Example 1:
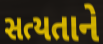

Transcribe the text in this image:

સત્યતાને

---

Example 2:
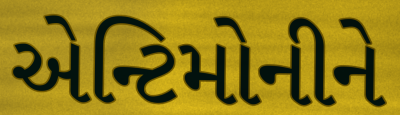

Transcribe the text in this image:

એન્ટિમોનીને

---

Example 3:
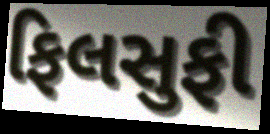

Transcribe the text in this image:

ફિલસુફી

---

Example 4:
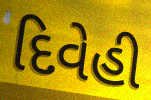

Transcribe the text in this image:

દિવેહી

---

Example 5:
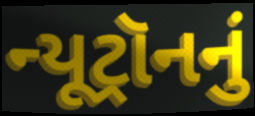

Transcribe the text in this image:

ન્યૂટ્રૉનનું